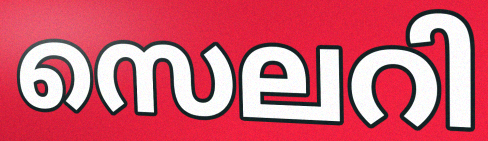
സെലറി